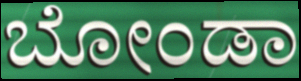
ಬೋಂಡಾ